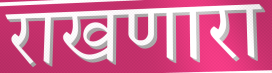
राखणारा